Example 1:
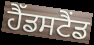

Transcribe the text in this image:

ਹੈੱਡਸਟੈਂਡ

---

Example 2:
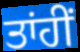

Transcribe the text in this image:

ਤਾਂਹੀਂ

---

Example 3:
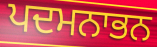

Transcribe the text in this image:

ਪਦਮਨਾਭਨ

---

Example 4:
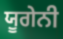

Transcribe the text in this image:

ਯੂਗੇਨੀ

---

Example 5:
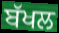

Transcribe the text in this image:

ਬੱਖਲ